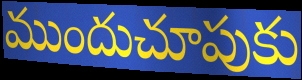
ముందుచూపుకు